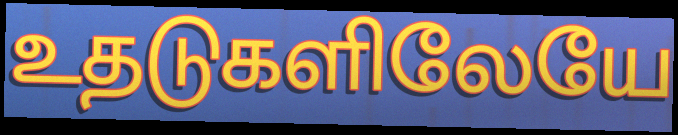
உதடுகளிலேயே